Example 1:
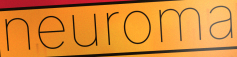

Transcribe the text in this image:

neuroma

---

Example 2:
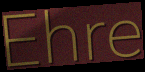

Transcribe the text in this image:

Ehre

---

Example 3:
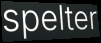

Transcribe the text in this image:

spelter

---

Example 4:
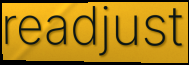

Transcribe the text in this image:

readjust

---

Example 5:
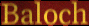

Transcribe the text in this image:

Baloch